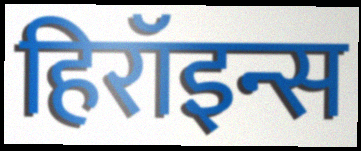
हिरॉइन्स